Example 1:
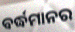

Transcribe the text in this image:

ବର୍ଦ୍ଧମାନର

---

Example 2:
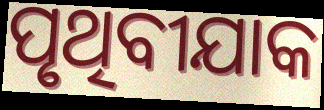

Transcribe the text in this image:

ପୃଥିବୀଯାକ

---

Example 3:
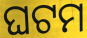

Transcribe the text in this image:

ଘଟମ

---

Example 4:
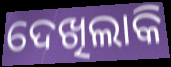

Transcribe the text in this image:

ଦେଖିଲାକି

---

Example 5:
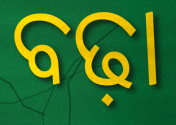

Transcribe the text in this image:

ବଢ଼ା